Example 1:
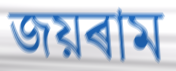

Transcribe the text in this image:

জয়ৰাম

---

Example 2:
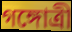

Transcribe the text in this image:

গঙ্গোত্ৰী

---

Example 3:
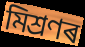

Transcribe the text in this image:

মিশ্ৰণৰ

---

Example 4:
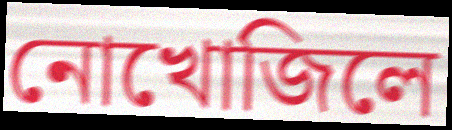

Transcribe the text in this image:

নোখোজিলে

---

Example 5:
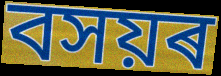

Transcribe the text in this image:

বসয়ৰ